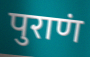
पुराणं